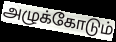
அழுக்கோடும்